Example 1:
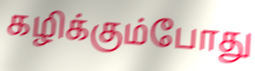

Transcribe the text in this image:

கழிக்கும்போது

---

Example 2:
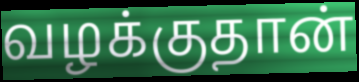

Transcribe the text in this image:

வழக்குதான்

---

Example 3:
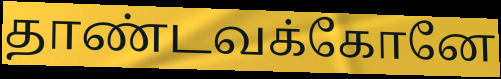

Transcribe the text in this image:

தாண்டவக்கோனே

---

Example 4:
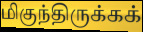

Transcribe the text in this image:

மிகுந்திருக்கக்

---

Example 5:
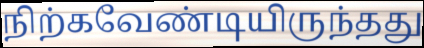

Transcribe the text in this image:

நிற்கவேண்டியிருந்தது